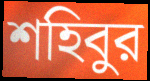
শহিবুর